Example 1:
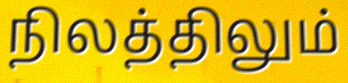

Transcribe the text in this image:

நிலத்திலும்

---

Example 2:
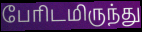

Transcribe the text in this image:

பேரிடமிருந்து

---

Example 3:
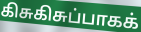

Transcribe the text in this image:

கிசுகிசுப்பாகக்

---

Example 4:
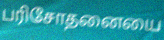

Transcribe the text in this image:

பரிசோதனையை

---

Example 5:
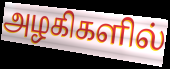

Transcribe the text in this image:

அழகிகளில்